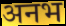
अनभ